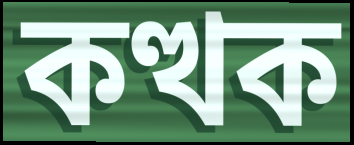
কত্থক